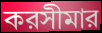
করসীমার